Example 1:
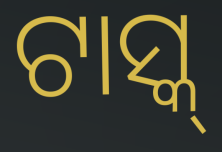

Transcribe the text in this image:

ଟାସ୍କ୍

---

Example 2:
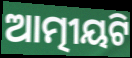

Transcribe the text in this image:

ଆତ୍ମୀୟଟି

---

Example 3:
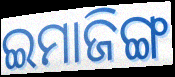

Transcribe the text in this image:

ଇମାଜିଙ୍ଗ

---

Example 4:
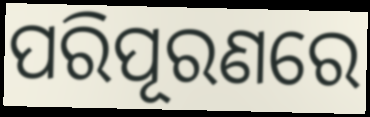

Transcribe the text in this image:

ପରିପୂରଣରେ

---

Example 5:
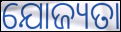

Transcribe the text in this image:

ଯୋଜ୍ୟତା